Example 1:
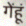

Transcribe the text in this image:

गेंहूं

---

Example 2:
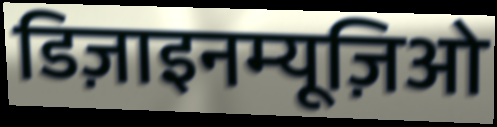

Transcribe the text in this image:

डिज़ाइनम्यूज़िओ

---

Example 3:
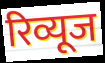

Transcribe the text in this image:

रिव्‍यूज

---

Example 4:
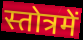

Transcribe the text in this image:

स्तोत्रमें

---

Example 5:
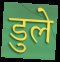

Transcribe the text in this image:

डुले